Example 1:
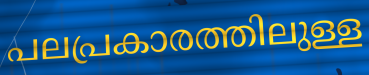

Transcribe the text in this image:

പലപ്രകാരത്തിലുള്ള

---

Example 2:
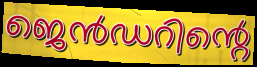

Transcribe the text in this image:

ജെൻഡറിന്റെ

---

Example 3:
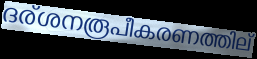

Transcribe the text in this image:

ദര്ശനരൂപീകരണത്തില്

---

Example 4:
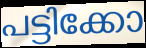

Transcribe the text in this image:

പട്ടിക്കോ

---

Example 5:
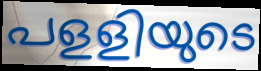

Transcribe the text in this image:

പളളിയുടെ